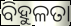
ବିହୁଳତା